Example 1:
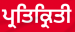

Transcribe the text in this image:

ਪ੍ਰਤਿਕ੍ਰਿਤੀ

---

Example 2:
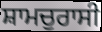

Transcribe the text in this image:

ਸ਼ਾਮਚੁਰਾਸੀ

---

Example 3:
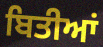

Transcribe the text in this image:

ਬਿਤੀਆਂ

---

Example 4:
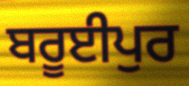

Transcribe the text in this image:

ਬਰੂਈਪੁਰ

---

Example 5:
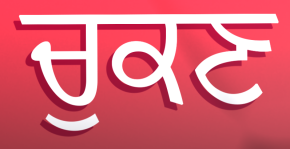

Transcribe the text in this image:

ਚੁਕਣ